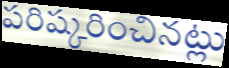
పరిష్కరించినట్లు